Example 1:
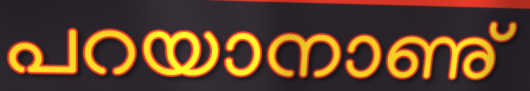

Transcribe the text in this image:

പറയാനാണു്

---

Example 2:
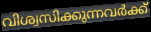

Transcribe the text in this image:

വിശ്വസിക്കുന്നവർക്ക്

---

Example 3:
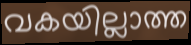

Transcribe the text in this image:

വകയില്ലാത്ത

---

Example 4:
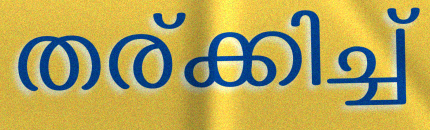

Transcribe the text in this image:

തര്ക്കിച്ച്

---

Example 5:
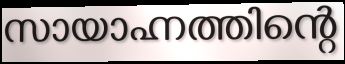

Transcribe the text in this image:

സായാഹ്നത്തിന്റെ